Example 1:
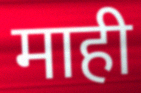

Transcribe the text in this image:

माही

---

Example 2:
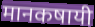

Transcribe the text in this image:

मानकषायी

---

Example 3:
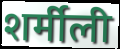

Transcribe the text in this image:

शर्मीली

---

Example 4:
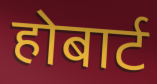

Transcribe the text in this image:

होबार्ट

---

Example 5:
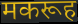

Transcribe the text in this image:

मकरूह